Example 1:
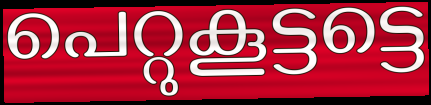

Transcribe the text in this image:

പെറ്റുകൂട്ടട്ടെ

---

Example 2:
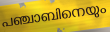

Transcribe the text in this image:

പഞ്ചാബിനെയും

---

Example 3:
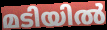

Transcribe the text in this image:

മടിയിൽ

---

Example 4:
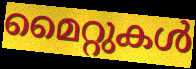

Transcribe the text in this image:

മൈറ്റുകൾ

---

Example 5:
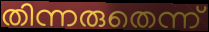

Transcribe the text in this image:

തിന്നരുതെന്ന്